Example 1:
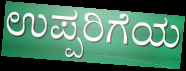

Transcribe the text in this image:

ಉಪ್ಪರಿಗೆಯ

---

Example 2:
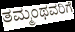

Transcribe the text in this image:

ತಮ್ಮಂಥವರಿಗೆ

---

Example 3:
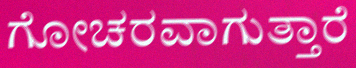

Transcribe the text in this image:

ಗೋಚರವಾಗುತ್ತಾರೆ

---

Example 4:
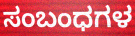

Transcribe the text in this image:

ಸಂಬಂಧಗಳ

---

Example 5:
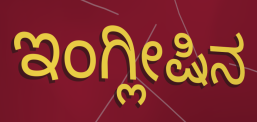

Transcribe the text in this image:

ಇಂಗ್ಲೀಷಿನ